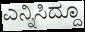
ಎನ್ನಿಸಿದ್ದೂ